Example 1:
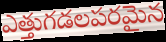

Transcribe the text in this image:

ఎత్తుగడలపరమైన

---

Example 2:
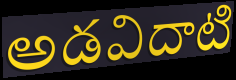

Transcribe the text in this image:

అడవిదాటి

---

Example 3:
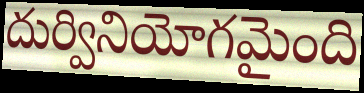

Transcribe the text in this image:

దుర్వినియోగమైంది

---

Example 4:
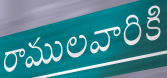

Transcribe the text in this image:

రాములవారికి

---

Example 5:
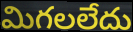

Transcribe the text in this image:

మిగలలేదు